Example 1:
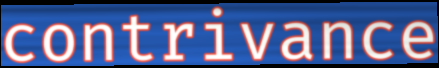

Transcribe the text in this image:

contrivance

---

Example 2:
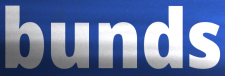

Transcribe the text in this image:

bunds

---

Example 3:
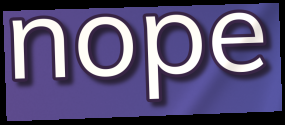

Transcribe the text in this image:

nope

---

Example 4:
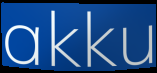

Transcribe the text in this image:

akku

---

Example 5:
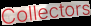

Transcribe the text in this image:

Collectors